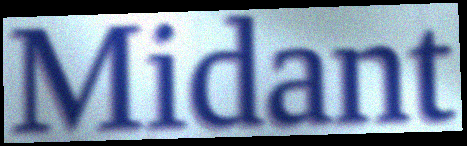
Midant